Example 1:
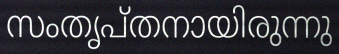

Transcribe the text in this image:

സംതൃപ്തനായിരുന്നു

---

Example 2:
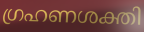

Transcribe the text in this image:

ഗ്രഹണശക്തി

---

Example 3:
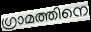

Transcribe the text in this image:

ഗ്രാമത്തിനെ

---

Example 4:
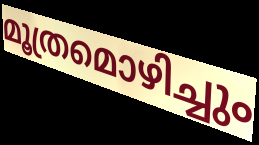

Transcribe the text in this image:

മൂത്രമൊഴിച്ചും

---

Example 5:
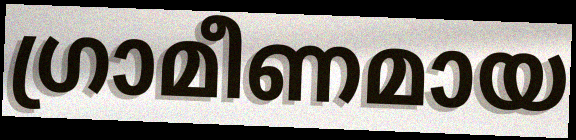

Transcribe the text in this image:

ഗ്രാമീണമായ